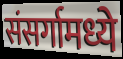
संसर्गामध्ये